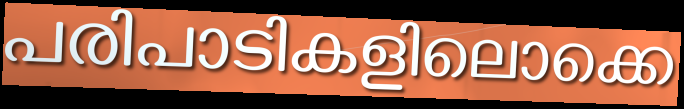
പരിപാടികളിലൊക്കെ